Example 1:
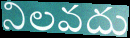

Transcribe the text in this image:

నిలవదు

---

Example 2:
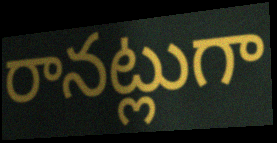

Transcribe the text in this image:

రానట్లుగా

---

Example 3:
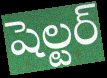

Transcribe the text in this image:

షెల్టర్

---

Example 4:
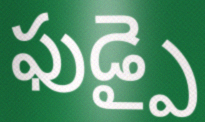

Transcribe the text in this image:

ఫుడ్పై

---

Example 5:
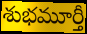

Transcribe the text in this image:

శుభమూర్తీ